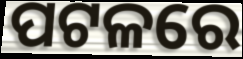
ପଟଳରେ